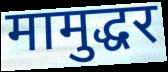
मामुद्धर